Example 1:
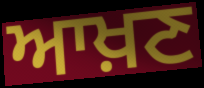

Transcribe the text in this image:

ਆਖ਼ਣ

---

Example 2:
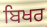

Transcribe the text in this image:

ਬਿਖਰ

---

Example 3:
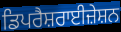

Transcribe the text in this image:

ਡਿਪਰੈਸ਼ਰਾਈਜ਼ੇਸ਼ਨ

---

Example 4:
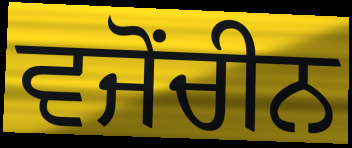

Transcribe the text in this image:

ਵਜੋਂਚੀਨ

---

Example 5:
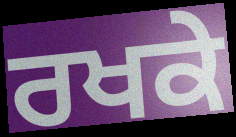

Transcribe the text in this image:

ਰਖਕੇ